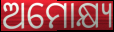
ଅମୋକ୍ଷ୍ୟ